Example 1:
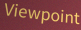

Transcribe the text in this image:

Viewpoint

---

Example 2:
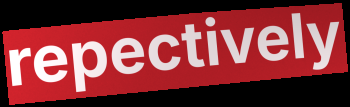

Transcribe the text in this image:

repectively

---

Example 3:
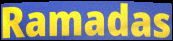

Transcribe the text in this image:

Ramadas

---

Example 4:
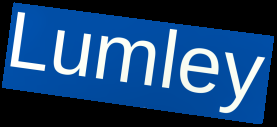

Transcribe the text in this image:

Lumley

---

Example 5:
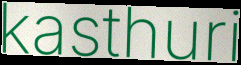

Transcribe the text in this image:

kasthuri